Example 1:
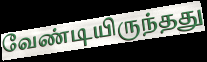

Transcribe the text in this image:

வேண்டியிருந்தது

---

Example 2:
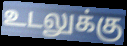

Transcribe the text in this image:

உடலுக்கு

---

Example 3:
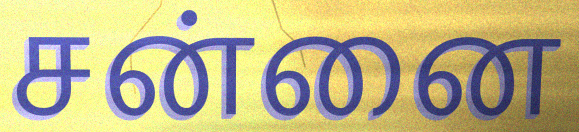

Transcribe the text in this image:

சன்னை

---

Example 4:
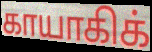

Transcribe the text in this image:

காயாகிக்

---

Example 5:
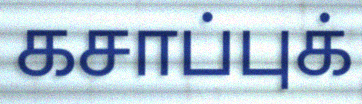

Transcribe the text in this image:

கசாப்புக்